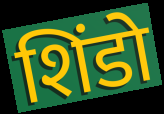
शिंडो